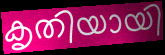
കൃതിയായി